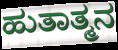
ಹುತಾತ್ಮನ